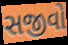
સજીવો